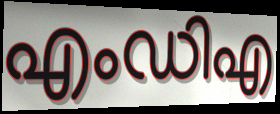
എംഡിഎ